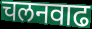
चलनवाढ